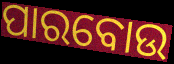
ପାରବୋଉ